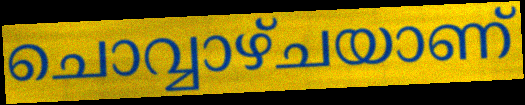
ചൊവ്വാഴ്ചയാണ്